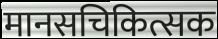
मानसचिकित्सक